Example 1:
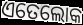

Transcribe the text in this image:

ଏତେଲୋକ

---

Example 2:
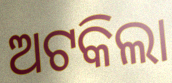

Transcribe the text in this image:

ଅଟକିଲା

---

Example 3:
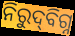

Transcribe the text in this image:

ନିରୁଦ୍‍ବିଗ୍ନ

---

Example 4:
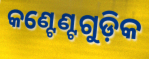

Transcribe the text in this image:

କଣ୍ଟେଣ୍ଟଗୁଡ଼ିକ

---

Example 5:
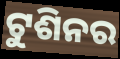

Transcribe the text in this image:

ଟୁଶିନର